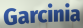
Garcinia